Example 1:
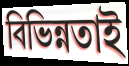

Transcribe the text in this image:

বিভিন্নতাই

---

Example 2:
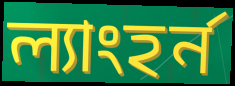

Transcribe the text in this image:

ল্যাংহর্ন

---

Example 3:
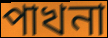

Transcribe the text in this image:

পাখনা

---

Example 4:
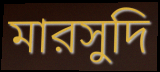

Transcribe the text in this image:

মারসুদি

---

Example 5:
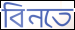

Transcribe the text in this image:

বিনতে